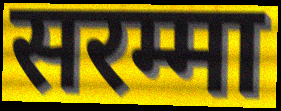
सरम्मा